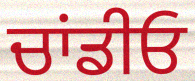
ਚਾਂਡੀਓ